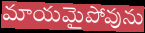
మాయమైపోవును